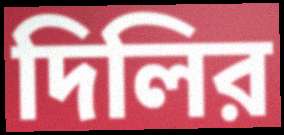
দিলির